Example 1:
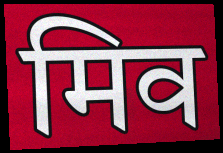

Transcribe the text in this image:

मिव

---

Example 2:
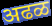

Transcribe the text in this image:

अढळ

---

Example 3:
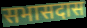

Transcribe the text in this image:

सभासदास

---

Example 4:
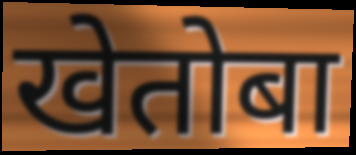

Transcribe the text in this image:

खेतोबा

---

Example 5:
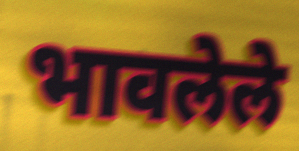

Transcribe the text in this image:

भावलेले